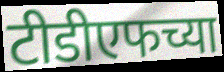
टीडीएफच्या